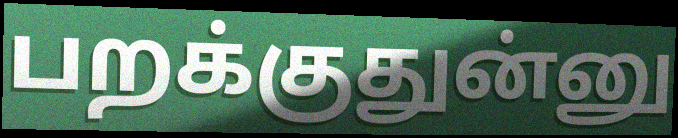
பறக்குதுன்னு